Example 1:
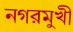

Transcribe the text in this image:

নগরমুখী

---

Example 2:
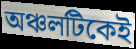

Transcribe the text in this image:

অঞ্চলটিকেই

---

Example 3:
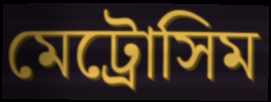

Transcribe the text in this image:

মেট্রোসিম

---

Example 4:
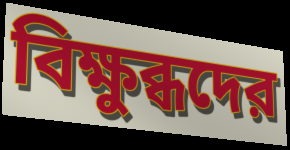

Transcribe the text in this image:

বিক্ষুব্ধদের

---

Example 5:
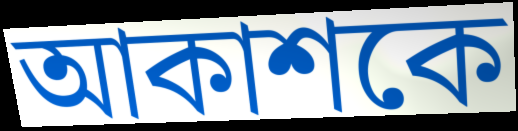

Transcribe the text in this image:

আকাশকে